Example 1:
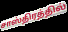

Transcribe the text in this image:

சாஸ்திரத்தில்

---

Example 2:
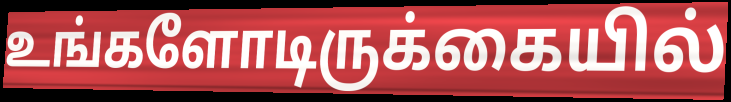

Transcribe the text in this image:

உங்களோடிருக்கையில்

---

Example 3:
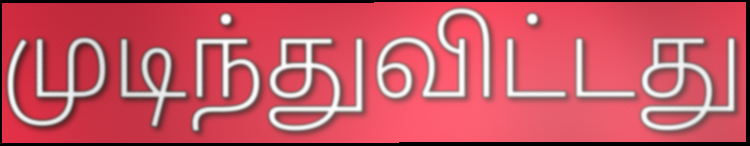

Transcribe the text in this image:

முடிந்துவிட்டது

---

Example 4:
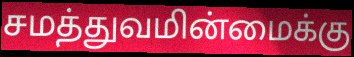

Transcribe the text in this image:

சமத்துவமின்மைக்கு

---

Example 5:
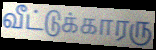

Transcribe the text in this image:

வீட்டுக்காரரு